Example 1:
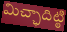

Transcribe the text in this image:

మిచ్ఛాదిట్ఠి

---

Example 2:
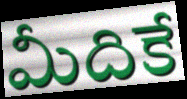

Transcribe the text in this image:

మీదికే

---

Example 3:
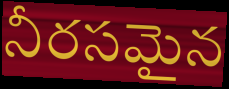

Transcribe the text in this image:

నీరసమైన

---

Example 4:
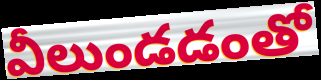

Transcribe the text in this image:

వీలుండడంతో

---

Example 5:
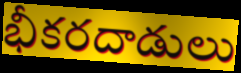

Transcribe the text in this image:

భీకరదాడులు